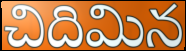
చిదిమిన